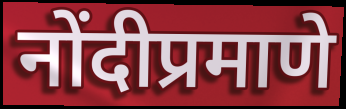
नोंदीप्रमाणे